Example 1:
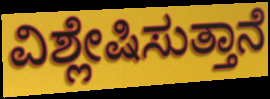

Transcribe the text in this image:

ವಿಶ್ಲೇಷಿಸುತ್ತಾನೆ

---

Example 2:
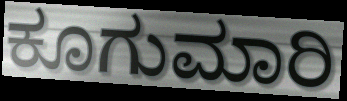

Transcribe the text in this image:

ಕೂಗುಮಾರಿ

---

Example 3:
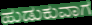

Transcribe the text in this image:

ಹುಡುಕುವಾಗ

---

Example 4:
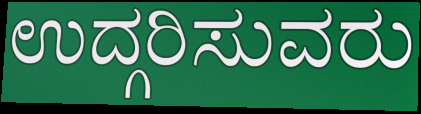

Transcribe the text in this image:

ಉದ್ಗರಿಸುವರು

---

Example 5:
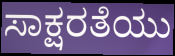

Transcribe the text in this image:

ಸಾಕ್ಷರತೆಯು